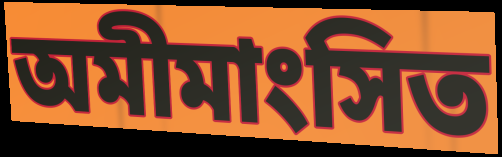
অমীমাংসিত